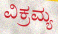
ವಿಕ್ರಮ್ಯ